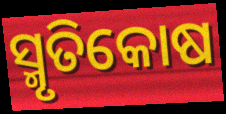
ସ୍ମୃତିକୋଷ